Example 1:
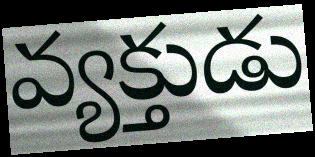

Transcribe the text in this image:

వ్యక్తుడు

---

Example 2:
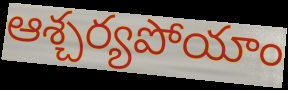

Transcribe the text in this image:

ఆశ్చర్యపోయాం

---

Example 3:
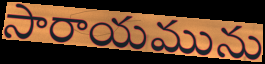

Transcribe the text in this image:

సారాయమును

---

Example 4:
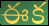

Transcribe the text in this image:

ఈక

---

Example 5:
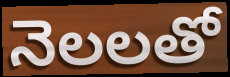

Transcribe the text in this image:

నెలలతో